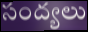
సంద్యలు